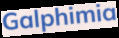
Galphimia